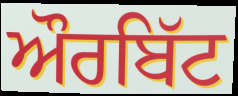
ਔਰਬਿੱਟ